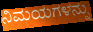
ನಿಮಯಗಳನ್ನು